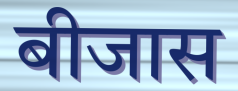
बीजास